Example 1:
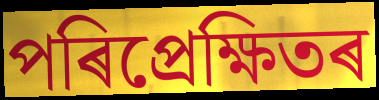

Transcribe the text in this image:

পৰিপ্ৰেক্ষিতৰ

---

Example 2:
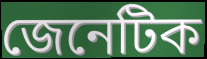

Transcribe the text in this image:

জেনেটিক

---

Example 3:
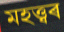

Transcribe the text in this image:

মহত্ত্বৰ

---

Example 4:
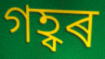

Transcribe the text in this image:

গহ্বৰ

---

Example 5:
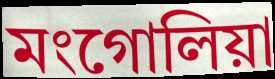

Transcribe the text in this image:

মংগোলিয়া